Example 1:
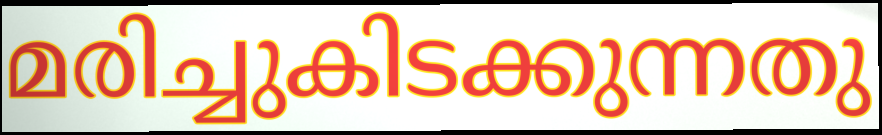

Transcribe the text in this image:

മരിച്ചുകിടക്കുന്നതു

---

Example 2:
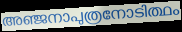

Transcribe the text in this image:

അഞ്ജനാപുത്രനോടിത്ഥം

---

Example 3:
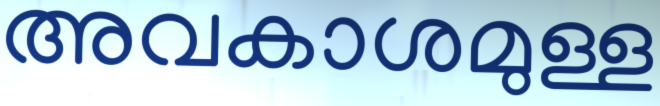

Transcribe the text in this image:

അവകാശമുള്ള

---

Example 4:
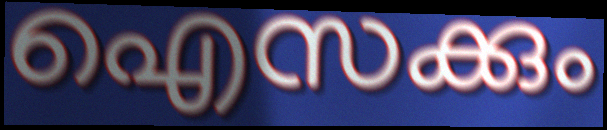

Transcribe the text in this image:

ഐസക്കും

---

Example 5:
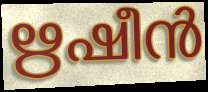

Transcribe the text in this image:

ഋഷീൻ